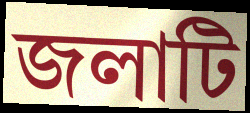
জলাটি